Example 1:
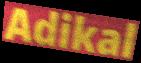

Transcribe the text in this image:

Adikal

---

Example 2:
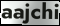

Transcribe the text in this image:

aajchi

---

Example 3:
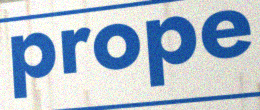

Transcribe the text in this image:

prope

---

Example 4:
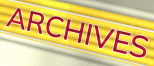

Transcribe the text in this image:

ARCHIVES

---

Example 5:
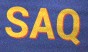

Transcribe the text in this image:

SAQ